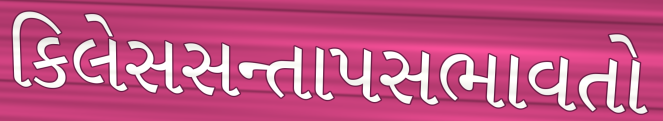
કિલેસસન્તાપસભાવતો